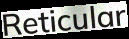
Reticular